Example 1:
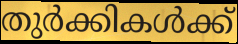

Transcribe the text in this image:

തുർക്കികൾക്ക്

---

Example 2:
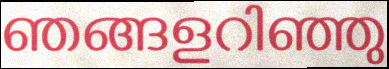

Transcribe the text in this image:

ഞങ്ങളറിഞ്ഞു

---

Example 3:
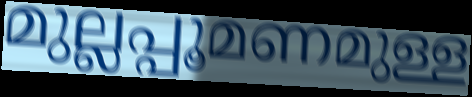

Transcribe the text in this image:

മുല്ലപ്പൂമണമുള്ള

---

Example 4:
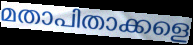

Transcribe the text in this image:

മതാപിതാക്കളെ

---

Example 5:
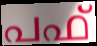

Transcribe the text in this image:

പഫ്